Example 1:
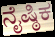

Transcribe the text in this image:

ನೈಷ್ಠಿಕ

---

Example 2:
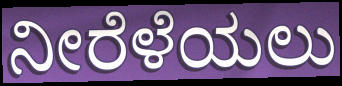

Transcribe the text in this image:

ನೀರೆಳೆಯಲು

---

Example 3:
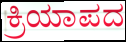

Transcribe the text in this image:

ಕ್ರಿಯಾಪದ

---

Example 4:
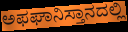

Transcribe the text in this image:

ಅಫಘಾನಿಸ್ತಾನದಲ್ಲಿ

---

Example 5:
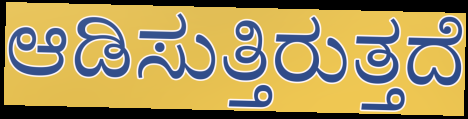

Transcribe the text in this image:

ಆಡಿಸುತ್ತಿರುತ್ತದೆ